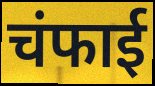
चंफाई